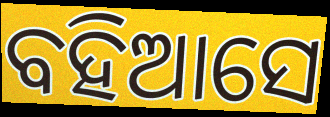
ବହିଆସେ